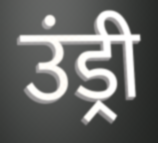
उंड्री